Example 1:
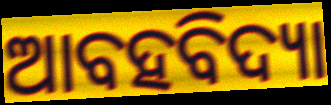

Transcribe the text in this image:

ଆବହବିଦ୍ୟା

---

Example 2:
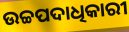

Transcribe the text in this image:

ଉଚ୍ଚପଦାଧିକାରୀ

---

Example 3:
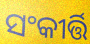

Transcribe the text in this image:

ସଂକୀର୍ତ୍ତି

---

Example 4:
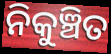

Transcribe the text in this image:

ନିକୁଞ୍ଚିତ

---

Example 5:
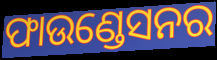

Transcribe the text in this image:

ଫାଉଣ୍ଡେସନର